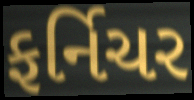
ફર્નિચર